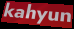
kahyun